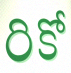
రికో